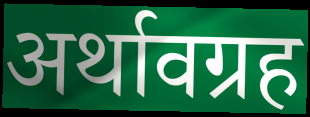
अर्थावग्रह